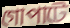
গোপাটে